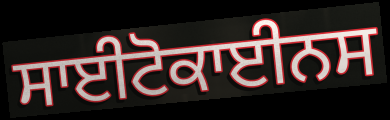
ਸਾਈਟੋਕਾਈਨਸ